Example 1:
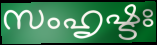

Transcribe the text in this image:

സംഹൃഷ്ടഃ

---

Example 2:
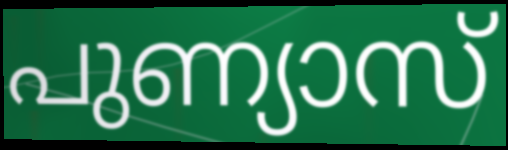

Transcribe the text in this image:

പുണ്യാസ്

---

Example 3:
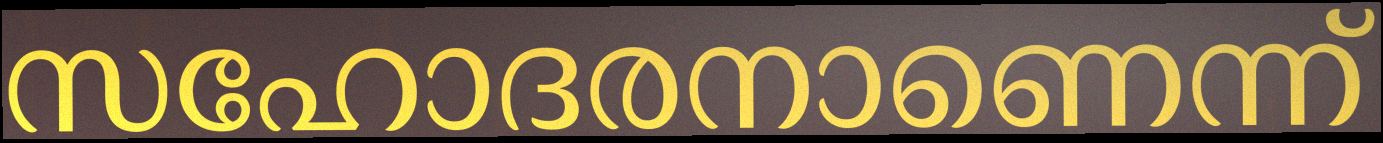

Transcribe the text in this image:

സഹോദരനാണെന്ന്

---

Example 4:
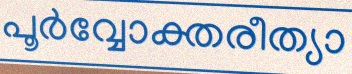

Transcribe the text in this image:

പൂർവ്വോക്തരീത്യാ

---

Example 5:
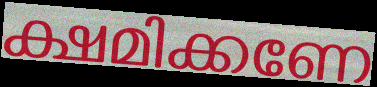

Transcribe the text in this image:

ക്ഷമിക്കണേ